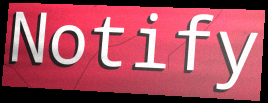
Notify